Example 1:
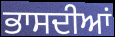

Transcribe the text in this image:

ਭਾਸਦੀਆਂ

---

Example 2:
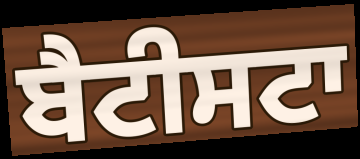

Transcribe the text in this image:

ਬੈਟੀਸਟਾ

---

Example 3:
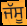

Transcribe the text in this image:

ਜੱਸੂ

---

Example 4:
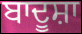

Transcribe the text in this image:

ਬਾਦੂਸ਼ਾ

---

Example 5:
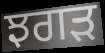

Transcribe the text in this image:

ਝਗੜ